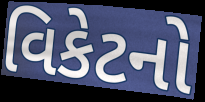
વિકેટનો